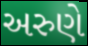
અરુણે